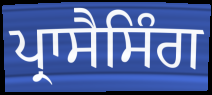
ਪ੍ਰਾਸੈਸਿੰਗ